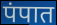
पंपात